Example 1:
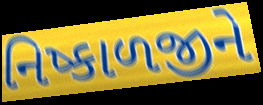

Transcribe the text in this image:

નિષ્કાળજીને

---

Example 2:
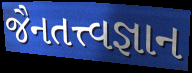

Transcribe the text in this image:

જૈનતત્ત્વજ્ઞાન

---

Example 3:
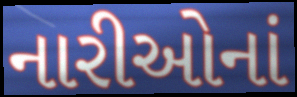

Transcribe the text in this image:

નારીઓનાં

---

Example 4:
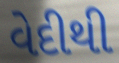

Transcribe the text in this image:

વેદીથી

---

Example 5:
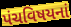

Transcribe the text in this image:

પંચવિષયનાં